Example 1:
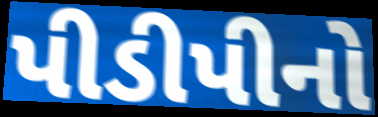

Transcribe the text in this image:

પીડીપીનો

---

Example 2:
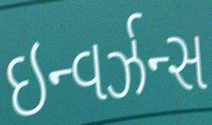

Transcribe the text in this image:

ઇન્વર્ઝન્સ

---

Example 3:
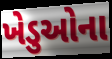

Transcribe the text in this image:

ખેડુઓના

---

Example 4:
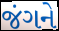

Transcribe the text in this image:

જંગને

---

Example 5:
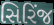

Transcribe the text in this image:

સિરિંજ